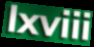
Ixviii